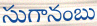
సుగానంబు